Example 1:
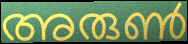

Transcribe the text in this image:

അരുൺ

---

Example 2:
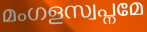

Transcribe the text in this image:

മംഗളസ്വപ്നമേ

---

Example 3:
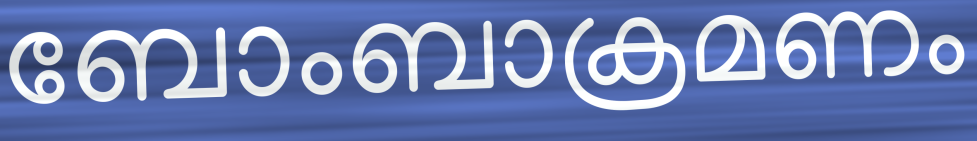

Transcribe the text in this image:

ബോംബാക്രമണം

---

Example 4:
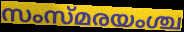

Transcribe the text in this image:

സംസ്മരയംശ്ച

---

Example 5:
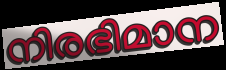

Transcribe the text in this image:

നിരഭിമാന